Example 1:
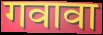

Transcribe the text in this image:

गवावा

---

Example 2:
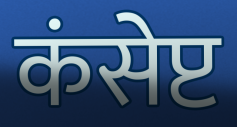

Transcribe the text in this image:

कंसेप्ट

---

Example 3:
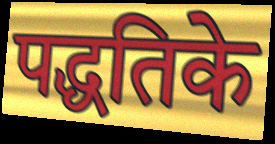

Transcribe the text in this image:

पद्धतिके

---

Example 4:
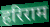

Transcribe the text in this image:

हरिराम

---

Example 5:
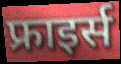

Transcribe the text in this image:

फ्राइर्स